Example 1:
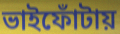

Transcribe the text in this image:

ভাইফোঁটায়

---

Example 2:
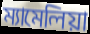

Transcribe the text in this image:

ম্যামেলিয়া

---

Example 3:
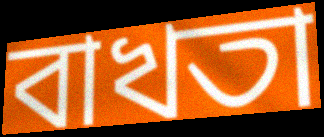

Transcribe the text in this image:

বাখতা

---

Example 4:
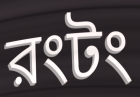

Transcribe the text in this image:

রংটং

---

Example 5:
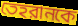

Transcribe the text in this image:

তেহরানকে